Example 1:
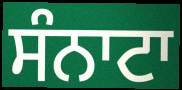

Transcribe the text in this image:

ਸੰਨਾਟਾ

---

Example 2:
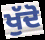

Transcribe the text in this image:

ਖੁੱਦੋ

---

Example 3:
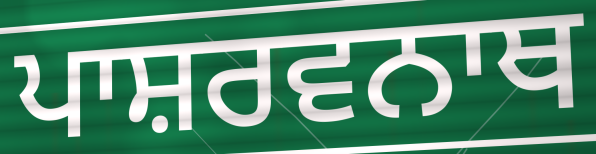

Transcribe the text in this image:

ਪਾਸ਼ਰਵਨਾਥ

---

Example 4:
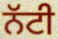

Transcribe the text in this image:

ਨੱਟੀ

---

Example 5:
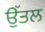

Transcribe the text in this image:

ਉੱਤਲ